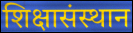
शिक्षासंस्थान